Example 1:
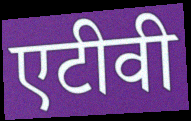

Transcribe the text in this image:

एटीवी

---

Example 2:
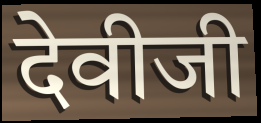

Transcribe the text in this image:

देवीजी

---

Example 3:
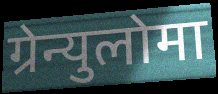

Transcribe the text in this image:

ग्रेन्युलोमा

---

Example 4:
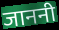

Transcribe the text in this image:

जाननी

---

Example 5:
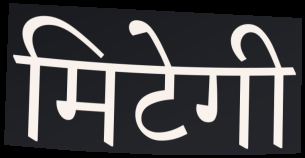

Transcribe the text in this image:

मिटेगी